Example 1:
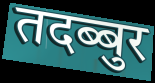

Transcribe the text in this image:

तदब्बुर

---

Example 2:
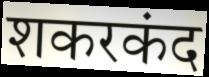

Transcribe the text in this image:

शकरकंद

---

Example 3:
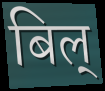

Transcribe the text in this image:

बिल्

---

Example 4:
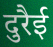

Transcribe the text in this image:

दुरैई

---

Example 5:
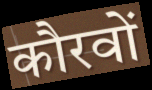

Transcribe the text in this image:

कौरवों